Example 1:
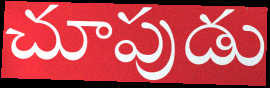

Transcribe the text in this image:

చూపుడు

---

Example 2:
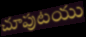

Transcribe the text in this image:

చూపుటయు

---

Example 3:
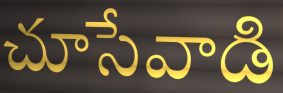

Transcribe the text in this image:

చూసేవాడి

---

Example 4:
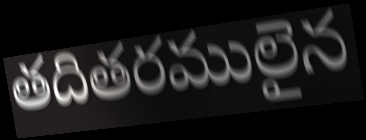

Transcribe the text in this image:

తదితరములైన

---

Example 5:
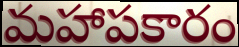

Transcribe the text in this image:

మహాపకారం